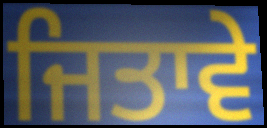
ਜਿਤਾਵੇ